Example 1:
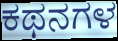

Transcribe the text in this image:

ಕಥನಗಳ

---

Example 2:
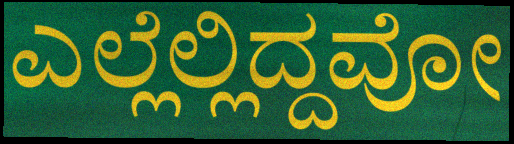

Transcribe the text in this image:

ಎಲ್ಲೆಲ್ಲಿದ್ದವೋ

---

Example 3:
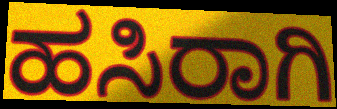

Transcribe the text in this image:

ಹಸಿರಾಗಿ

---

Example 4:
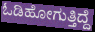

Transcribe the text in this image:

ಓಡಿಹೋಗುತ್ತಿದ್ದೆ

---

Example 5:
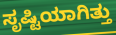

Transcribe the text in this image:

ಸೃಷ್ಟಿಯಾಗಿತ್ತು